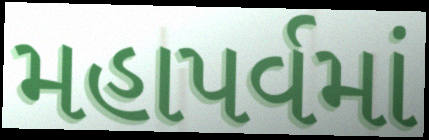
મહાપર્વમાં